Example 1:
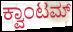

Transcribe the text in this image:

ಕ್ವಾಂಟಮ್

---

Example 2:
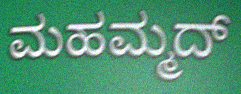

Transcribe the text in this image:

ಮಹಮ್ಮದ್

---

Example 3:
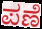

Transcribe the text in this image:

ಪಣೆ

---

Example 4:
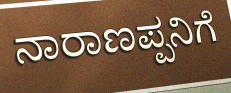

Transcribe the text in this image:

ನಾರಾಣಪ್ಪನಿಗೆ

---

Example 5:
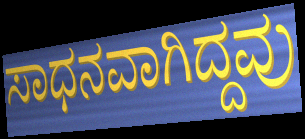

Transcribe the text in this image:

ಸಾಧನವಾಗಿದ್ದವು